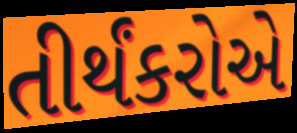
તીર્થંકરોએ